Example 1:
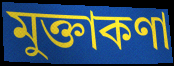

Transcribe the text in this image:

মুক্তাকণা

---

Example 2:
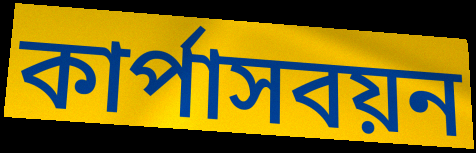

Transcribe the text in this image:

কার্পাসবয়ন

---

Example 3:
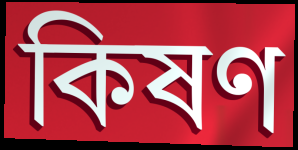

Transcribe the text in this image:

কিষণ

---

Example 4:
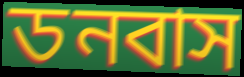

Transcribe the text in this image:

ডনবাস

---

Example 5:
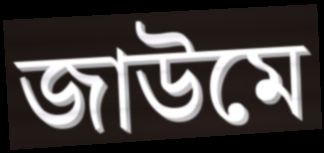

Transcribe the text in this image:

জাউমে